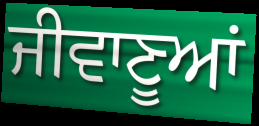
ਜੀਵਾਣੂਆਂ